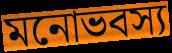
মনোভবস্য